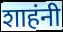
शाहंनी